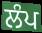
ਲੰਪ